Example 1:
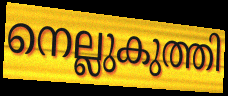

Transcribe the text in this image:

നെല്ലുകുത്തി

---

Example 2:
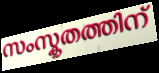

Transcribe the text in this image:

സംസ്കൃതത്തിന്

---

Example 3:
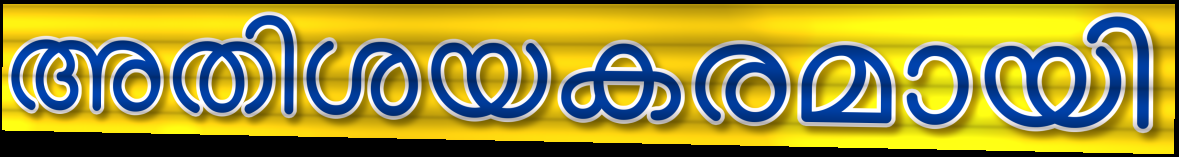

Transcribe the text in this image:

അതിശയകരമായി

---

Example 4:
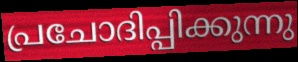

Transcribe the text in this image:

പ്രചോദിപ്പിക്കുന്നു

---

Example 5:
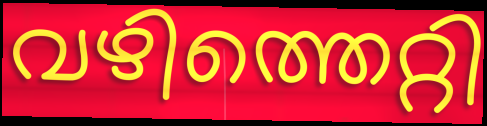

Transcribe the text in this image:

വഴിത്തെറ്റി